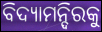
ବିଦ୍ୟାମନ୍ଦିରକୁ